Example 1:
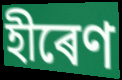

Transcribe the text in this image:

হীৰেণ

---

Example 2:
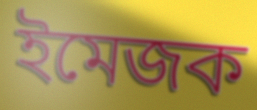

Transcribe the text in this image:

ইমেজক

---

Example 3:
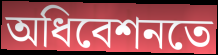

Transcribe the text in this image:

অধিবেশনতে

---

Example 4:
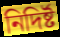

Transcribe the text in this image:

নিদিৰ্ষ্ট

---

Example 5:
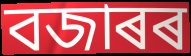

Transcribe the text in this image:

বজাৰৰ